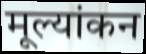
मूल्यांकन